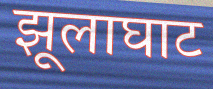
झूलाघाट